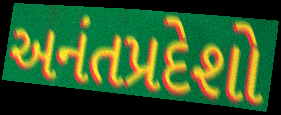
અનંતપ્રદેશો